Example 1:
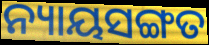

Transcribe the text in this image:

ନ୍ୟାୟସଙ୍ଗତ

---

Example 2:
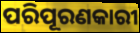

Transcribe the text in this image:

ପରିପୂରଣକାରୀ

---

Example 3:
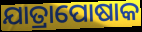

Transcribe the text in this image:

ଯାତ୍ରାପୋଷାକ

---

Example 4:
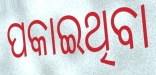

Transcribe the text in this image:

ପକାଇଥିବା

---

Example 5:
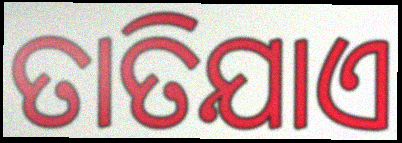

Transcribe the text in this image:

ତାତିଯାଏ